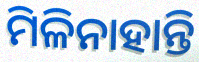
ମିଳିନାହାନ୍ତି